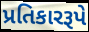
પ્રતિકારરૂપે